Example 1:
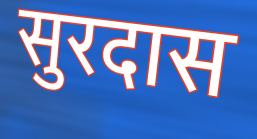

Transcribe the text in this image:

सुरदास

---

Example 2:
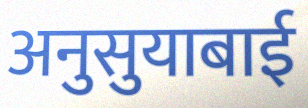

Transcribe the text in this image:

अनुसुयाबाई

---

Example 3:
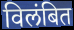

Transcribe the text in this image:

विलंबित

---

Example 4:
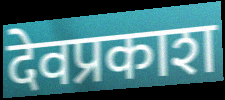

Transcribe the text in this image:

देवप्रकाश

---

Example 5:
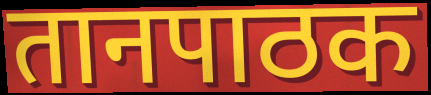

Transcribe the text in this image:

तानपाठक